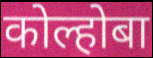
कोल्होबा